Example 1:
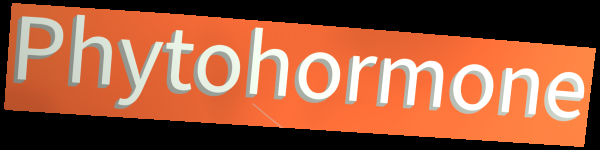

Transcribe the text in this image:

Phytohormone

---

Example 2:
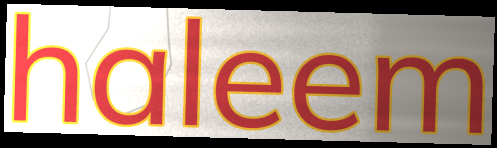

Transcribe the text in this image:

haleem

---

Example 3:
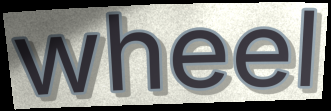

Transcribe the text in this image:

wheel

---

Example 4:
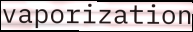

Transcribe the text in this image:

vaporization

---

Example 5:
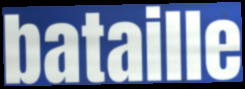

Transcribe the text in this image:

bataille